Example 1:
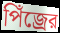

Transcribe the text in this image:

পিঁজ্রের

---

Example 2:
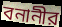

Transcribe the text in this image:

বনানীর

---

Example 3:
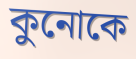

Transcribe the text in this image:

কুনোকে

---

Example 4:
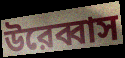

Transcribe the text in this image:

উরেব্বাস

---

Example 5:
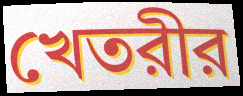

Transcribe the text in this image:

খেতরীর